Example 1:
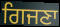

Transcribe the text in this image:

ਗਿਜਣਾ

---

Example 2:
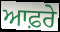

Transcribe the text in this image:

ਆਫ਼ਰੇ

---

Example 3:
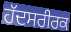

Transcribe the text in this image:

ਹੱਦਸਰੀਰਕ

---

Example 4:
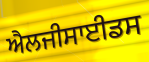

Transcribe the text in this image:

ਐਲਜੀਸਾਈਡਸ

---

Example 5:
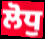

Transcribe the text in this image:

ਲੋਧੁ